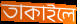
তাকাইলে